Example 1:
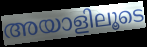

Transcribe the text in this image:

അയാളിലൂടെ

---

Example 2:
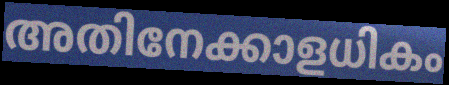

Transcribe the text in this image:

അതിനേക്കാളധികം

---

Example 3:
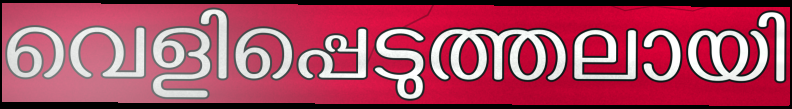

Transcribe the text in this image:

വെളിപ്പെടുത്തലായി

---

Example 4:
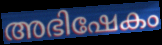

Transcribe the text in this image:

അഭിഷേകം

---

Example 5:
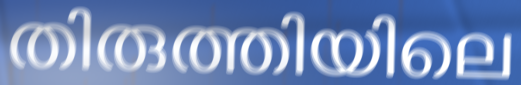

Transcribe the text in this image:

തിരുത്തിയിലെ